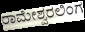
ರಾಮೇಶ್ವರಲಿಂಗ